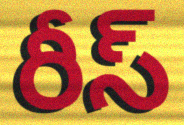
రీస్